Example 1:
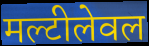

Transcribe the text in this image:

मल्टीलेवल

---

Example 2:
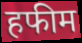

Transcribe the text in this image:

हफीम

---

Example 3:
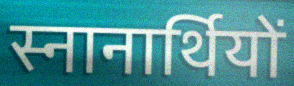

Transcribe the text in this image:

स्नानार्थियों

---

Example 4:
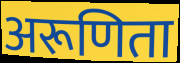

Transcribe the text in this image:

अरूणिता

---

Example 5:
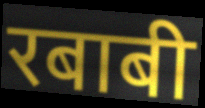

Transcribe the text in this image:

रबाबी